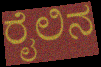
ರೈಲಿನ